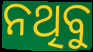
ନଥିବୁ